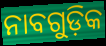
ନାବଗୁଡ଼ିକ